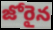
జోరైన